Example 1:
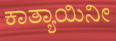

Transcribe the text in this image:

ಕಾತ್ಯಾಯಿನೀ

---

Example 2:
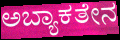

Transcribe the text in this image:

ಅಬ್ಯಾಕತೇನ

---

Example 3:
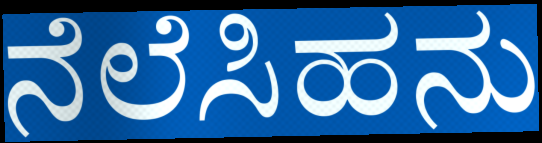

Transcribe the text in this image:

ನೆಲೆಸಿಹನು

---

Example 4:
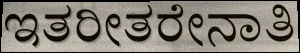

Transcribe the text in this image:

ಇತರೀತರೇನಾತಿ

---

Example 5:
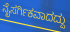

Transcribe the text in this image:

ನೈಸರ್ಗಿಕವಾದದ್ದು